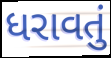
ધરાવતું